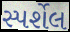
સ્પર્શેલ